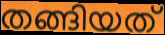
തങ്ങിയത്